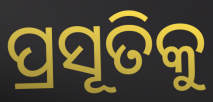
ପ୍ରସୂତିକୁ